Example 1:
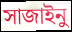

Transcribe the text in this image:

সাজাইনু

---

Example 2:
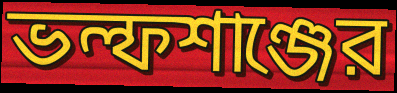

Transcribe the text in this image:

ভল্ফশাঞ্জের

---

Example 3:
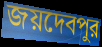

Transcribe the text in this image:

জয়দেবপুর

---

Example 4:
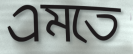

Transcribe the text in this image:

এমতে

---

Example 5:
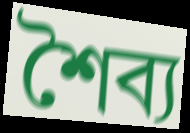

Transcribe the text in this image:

শৈব্য